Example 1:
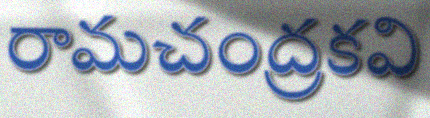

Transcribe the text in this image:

రామచంద్రకవి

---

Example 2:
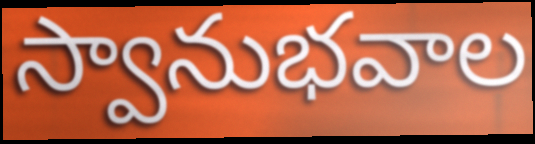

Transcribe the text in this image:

స్వానుభవాల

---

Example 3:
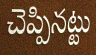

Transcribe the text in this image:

చెప్పినట్టు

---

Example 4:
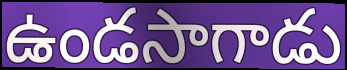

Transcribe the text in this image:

ఉండసాగాడు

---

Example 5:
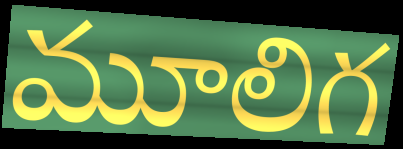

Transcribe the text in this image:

మూలిగ